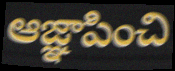
ఆజ్ఞాపించి